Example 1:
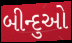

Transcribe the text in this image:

બીન્દુઓ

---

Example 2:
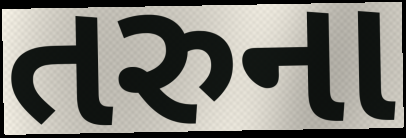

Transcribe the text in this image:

તરુના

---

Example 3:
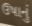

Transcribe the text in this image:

ઉષાનું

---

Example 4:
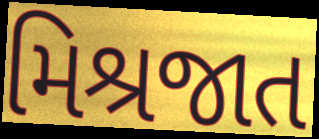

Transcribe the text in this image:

મિશ્રજાત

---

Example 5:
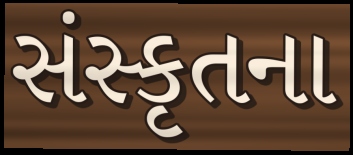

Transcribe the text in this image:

સંસ્‍કૃતના